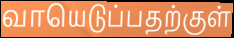
வாயெடுப்பதற்குள்